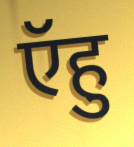
ऍहु